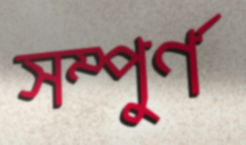
সম্পুৰ্ণ